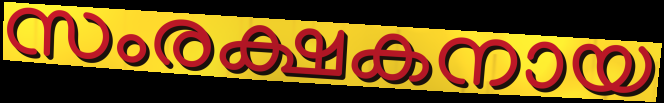
സംരക്ഷകനായ